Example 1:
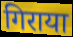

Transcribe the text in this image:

गिराया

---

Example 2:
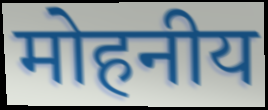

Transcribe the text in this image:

मोहनीय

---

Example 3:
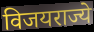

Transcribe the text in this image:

विजयराज्ये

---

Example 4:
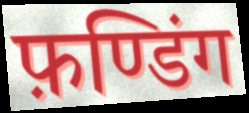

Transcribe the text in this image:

फ़ण्डिंग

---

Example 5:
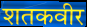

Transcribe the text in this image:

शतकवीर